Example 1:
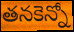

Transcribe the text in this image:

తనకెన్నో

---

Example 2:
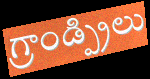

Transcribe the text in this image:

గ్రాండ్ప్రిలు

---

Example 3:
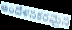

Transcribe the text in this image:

ఆందోళనకరమైన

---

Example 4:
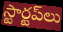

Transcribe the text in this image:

స్టార్టప్‌లు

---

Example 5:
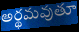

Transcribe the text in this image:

అర్థమవుతూ